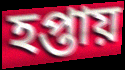
হপ্তায়